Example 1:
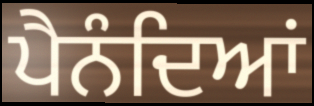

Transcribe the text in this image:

ਪੈਨੰਦਿਆਂ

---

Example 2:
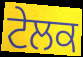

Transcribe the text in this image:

ਟੇਲਕ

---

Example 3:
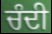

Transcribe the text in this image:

ਚੰਦੀ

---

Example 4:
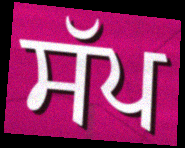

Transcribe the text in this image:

ਸੱਪ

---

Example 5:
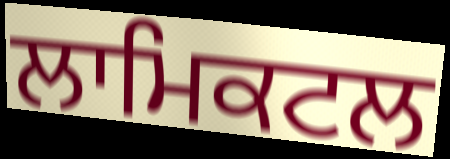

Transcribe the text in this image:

ਲਾਮਿਕਟਲ